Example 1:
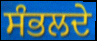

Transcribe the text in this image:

ਸੰਭਲਦੇ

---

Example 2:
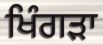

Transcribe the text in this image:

ਖਿੰਗੜਾ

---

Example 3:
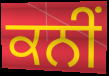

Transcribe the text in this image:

ਕਨੀਂ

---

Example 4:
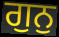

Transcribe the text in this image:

ਗੁਨੁ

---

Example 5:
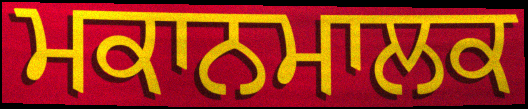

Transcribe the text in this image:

ਮਕਾਨਮਾਲਕ